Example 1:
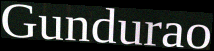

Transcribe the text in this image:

Gundurao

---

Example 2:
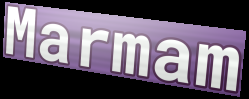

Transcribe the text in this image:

Marmam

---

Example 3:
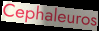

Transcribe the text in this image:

Cephaleuros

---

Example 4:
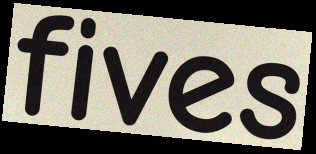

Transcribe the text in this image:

fives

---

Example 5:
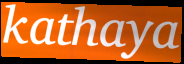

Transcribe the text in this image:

kathaya